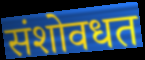
संशोवधत